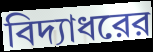
বিদ্যাধরের